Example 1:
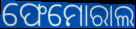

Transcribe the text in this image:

ଫେମୋରାଲ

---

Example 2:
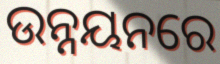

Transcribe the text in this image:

ଉନ୍ନୟନରେ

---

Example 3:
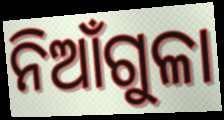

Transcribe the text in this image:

ନିଆଁଗୁଳା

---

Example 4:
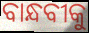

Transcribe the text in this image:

ବାନ୍ଧବୀକୁ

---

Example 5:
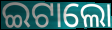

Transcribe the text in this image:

ଇଟାଲୋ